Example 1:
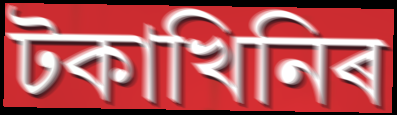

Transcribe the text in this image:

টকাখিনিৰ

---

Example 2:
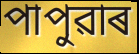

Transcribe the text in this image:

পাপুৱাৰ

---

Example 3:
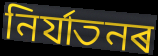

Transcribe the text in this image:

নিৰ্যাতনৰ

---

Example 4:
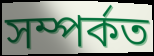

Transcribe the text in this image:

সম্পৰ্কত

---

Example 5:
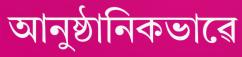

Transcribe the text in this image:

আনুষ্ঠানিকভাৱে